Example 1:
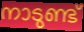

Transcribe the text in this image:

നാടുണ്ട്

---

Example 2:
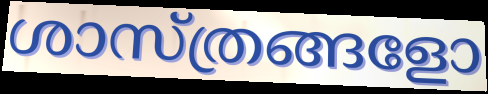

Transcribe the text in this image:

ശാസ്ത്രങ്ങളോ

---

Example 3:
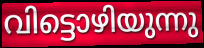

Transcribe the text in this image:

വിട്ടൊഴിയുന്നു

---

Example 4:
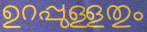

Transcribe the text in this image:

ഉറപ്പുള്ളതും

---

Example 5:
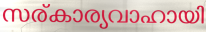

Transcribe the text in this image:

സര്കാര്യവാഹായി